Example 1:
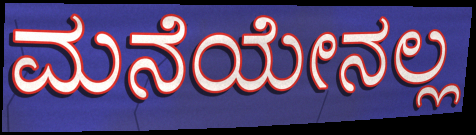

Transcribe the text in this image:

ಮನೆಯೇನಲ್ಲ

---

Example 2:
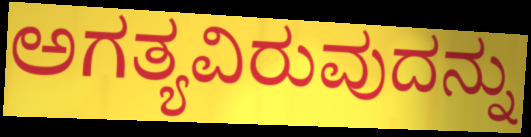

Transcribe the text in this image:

ಅಗತ್ಯವಿರುವುದನ್ನು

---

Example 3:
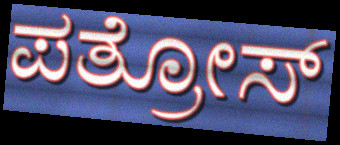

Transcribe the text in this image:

ಪತ್ರೋಸ್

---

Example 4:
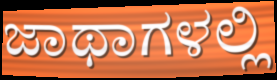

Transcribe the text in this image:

ಜಾಥಾಗಳಲ್ಲಿ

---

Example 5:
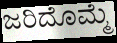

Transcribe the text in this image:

ಜರಿದೊಮ್ಮೆ